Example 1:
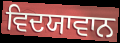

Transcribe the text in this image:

ਵਿਦਯਾਵਾਨ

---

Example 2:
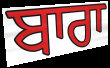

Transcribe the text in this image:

ਬਾਰਾ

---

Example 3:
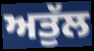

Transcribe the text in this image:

ਅਤੁੱਲ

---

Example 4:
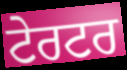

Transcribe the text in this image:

ਟੇਰਟਰ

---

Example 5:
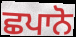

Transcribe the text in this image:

ਛਪਾਨੋ